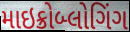
માઇક્રોબ્લોગિંગ